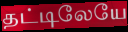
தட்டிலேயே